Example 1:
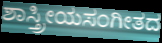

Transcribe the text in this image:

ಶಾಸ್ತ್ರೀಯಸಂಗೀತದ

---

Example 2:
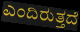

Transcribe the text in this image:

ಎಂದಿರುತ್ತದೆ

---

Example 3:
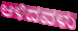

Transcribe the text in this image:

ಆಳಿದವಳು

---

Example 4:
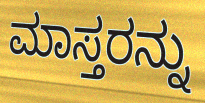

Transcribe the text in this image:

ಮಾಸ್ತರನ್ನು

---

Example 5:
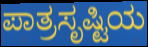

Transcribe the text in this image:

ಪಾತ್ರಸೃಷ್ಟಿಯ